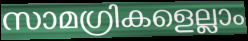
സാമഗ്രികളെല്ലാം